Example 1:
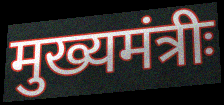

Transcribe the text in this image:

मुख्यमंत्रीः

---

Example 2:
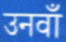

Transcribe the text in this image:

उनवाँ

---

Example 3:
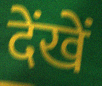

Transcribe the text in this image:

देंखें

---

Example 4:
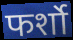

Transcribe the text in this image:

फर्शो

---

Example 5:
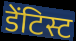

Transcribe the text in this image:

डेंटिस्ट